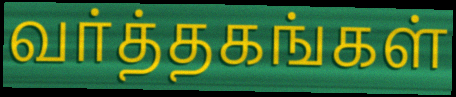
வர்த்தகங்கள்